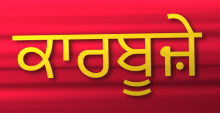
ਕਾਰਬੂਜ਼ੇ